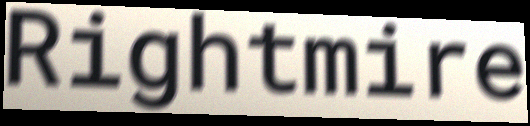
Rightmire